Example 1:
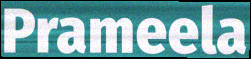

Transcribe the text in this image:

Prameela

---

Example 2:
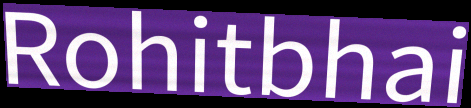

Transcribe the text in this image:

Rohitbhai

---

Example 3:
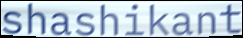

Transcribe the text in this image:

shashikant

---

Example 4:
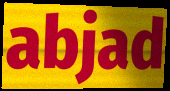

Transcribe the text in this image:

abjad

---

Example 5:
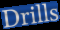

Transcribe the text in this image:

Drills